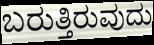
ಬರುತ್ತಿರುವುದು